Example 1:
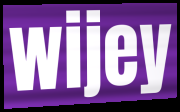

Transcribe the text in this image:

wijey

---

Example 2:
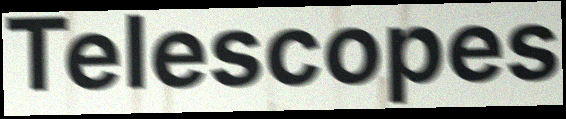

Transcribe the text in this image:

Telescopes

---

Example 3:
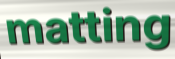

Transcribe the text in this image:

matting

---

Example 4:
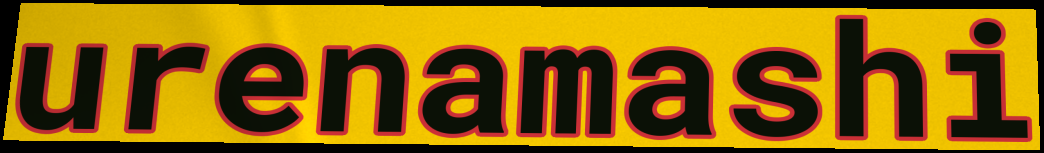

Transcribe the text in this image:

urenamashi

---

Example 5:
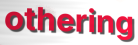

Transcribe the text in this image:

othering